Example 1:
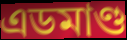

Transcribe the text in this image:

এডমাণ্ড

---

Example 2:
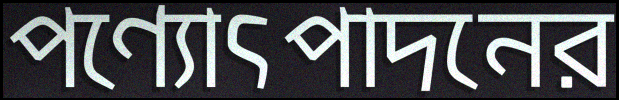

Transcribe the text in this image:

পণ্যোৎপাদনের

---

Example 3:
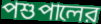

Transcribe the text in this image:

পশুপালের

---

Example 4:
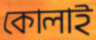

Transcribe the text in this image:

কোলাই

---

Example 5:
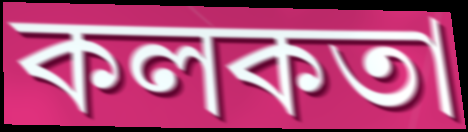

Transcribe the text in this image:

কলকতা